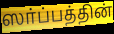
ஸர்ப்பத்தின்